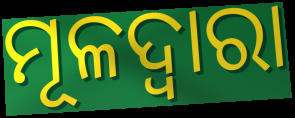
ମୂଳଦ୍ଵାରା